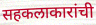
सहकलाकारांची